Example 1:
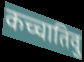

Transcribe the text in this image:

कच्चातिवु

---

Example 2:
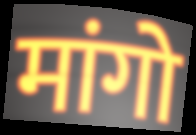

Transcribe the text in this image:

मांगो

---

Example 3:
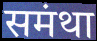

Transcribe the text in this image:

समंथा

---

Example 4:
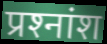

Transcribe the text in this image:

प्रश्‍नांश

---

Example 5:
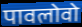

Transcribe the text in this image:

पावलोवो